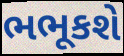
ભભૂકશે